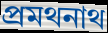
প্রমথনাথ